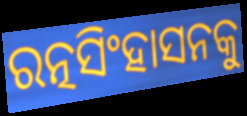
ରତ୍ନସିଂହାସନକୁ